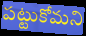
పట్టుకోమని